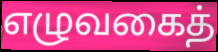
எழுவகைத்